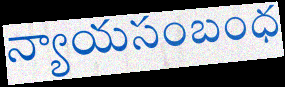
న్యాయసంబంధ